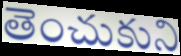
తెంచుకుని